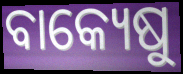
ବାକ୍ୟେଷୁ